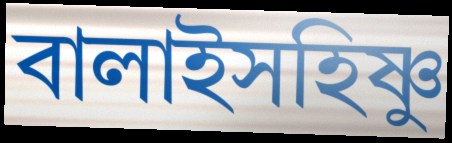
বালাইসহিষ্ণু